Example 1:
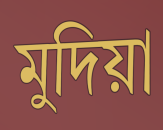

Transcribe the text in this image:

মুদিয়া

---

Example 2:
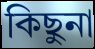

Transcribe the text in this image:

কিছুনা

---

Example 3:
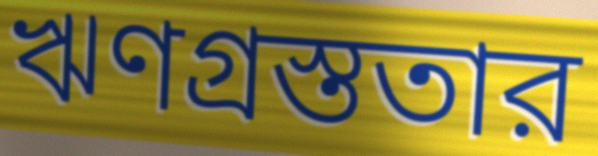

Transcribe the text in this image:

ঋণগ্রস্ততার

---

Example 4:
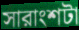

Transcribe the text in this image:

সারাংশটা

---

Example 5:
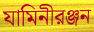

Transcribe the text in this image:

যামিনীরঞ্জন